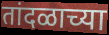
तांदळाच्या